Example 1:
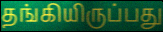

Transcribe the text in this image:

தங்கியிருப்பது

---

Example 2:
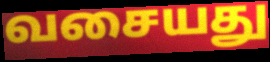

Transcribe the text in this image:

வசையது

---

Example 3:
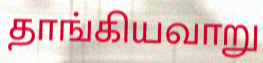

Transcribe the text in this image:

தாங்கியவாறு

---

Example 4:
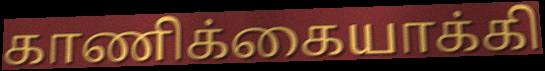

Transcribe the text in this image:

காணிக்கையாக்கி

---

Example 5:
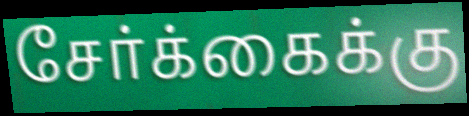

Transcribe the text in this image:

சேர்க்கைக்கு